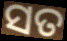
ସତ